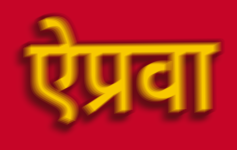
ऐप्रवा